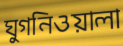
ঘুগনিওয়ালা